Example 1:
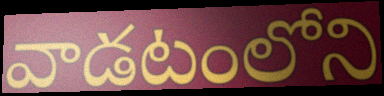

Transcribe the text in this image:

వాడటంలోని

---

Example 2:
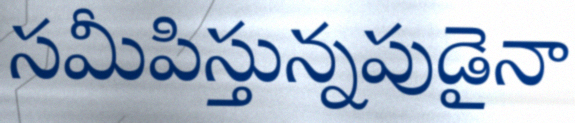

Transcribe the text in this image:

సమీపిస్తున్నపుడైనా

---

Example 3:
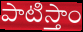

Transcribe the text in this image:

పాటిస్తాం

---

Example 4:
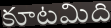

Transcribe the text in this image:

కూటమిది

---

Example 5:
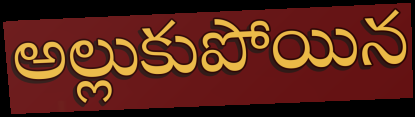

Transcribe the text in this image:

అల్లుకుపోయిన